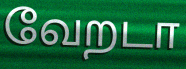
வேறடா